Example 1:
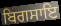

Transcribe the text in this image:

ਬਿਗਸਾਇ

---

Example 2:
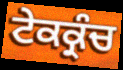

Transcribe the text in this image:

ਟੇਕਕ੍ਰੰਚ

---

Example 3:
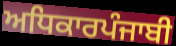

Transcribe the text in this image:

ਅਧਿਕਾਰਪੰਜਾਬੀ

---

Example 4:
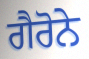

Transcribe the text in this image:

ਗੈਰੋਨੇ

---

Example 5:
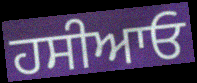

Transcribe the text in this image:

ਹਸੀਆਓ